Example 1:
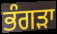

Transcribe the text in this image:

ਭੰਗੜਾ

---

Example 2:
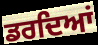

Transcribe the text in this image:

ਡਰਦਿਆਂ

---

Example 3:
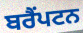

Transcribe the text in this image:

ਬਰੈੰਪਟਨ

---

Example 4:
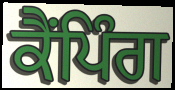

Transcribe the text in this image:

ਕੈਂਪਿੰਗ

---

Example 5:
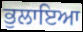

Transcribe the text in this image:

ਭੁਲਾਇਆ